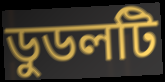
ডুডলটি